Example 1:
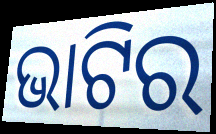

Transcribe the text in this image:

ଭାଟିର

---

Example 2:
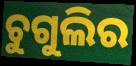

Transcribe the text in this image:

ଚୁଗୁଲିର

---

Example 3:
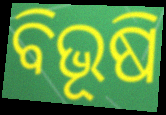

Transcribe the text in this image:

ବିଭୂଷି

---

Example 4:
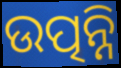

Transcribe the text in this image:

ଉତ୍ପନ୍ନି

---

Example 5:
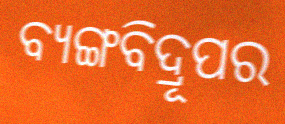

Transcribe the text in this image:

ବ୍ୟଙ୍ଗବିଦ୍ରୂପର